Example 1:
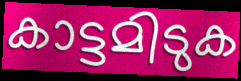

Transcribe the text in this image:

കാട്ടമിടുക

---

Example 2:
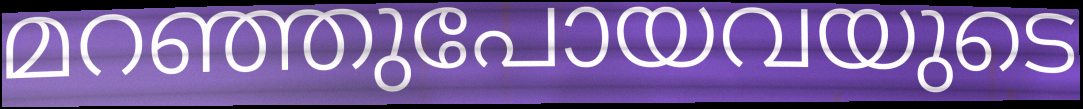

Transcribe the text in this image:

മറഞ്ഞുപോയവയുടെ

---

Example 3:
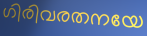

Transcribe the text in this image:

ഗിരിവരതനയേ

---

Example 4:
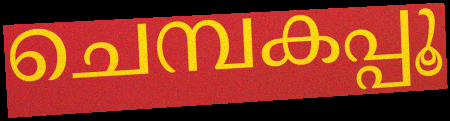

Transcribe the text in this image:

ചെമ്പകപ്പൂ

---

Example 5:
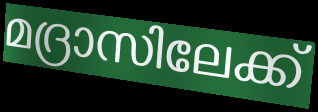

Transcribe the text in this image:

മദ്രാസിലേക്ക്